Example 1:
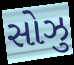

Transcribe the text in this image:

સોઝુ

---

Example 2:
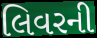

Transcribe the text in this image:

લિવરની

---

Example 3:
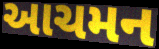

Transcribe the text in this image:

આચમન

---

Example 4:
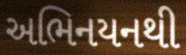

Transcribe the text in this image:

અભિનયનથી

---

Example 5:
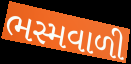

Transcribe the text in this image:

ભસ્મવાળી